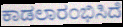
ಕಾಡಲಾರಂಭಿಸಿದೆ